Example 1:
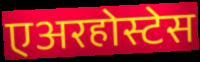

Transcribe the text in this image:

एअरहोस्टेस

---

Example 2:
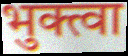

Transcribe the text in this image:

भुक्त्वा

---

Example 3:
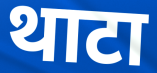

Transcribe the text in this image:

थाटा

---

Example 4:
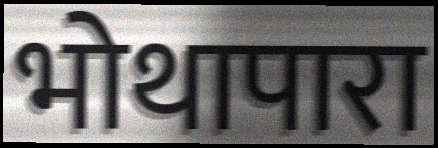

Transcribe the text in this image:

भोथापारा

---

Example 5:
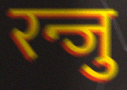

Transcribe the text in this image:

रन्जु